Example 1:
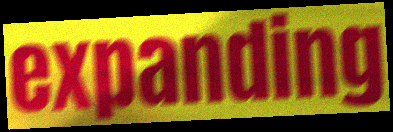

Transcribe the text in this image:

expanding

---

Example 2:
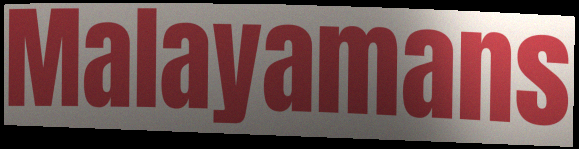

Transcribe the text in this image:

Malayamans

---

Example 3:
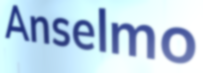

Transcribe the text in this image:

Anselmo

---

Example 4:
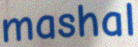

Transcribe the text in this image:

mashal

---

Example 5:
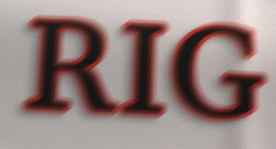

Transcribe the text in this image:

RIG